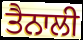
ਤੈਨਾਲੀ